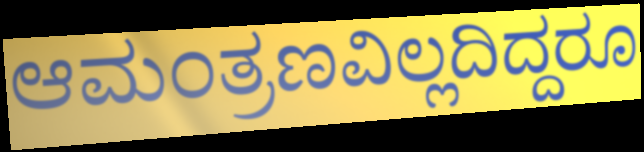
ಆಮಂತ್ರಣವಿಲ್ಲದಿದ್ದರೂ